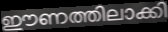
ഈണത്തിലാക്കി